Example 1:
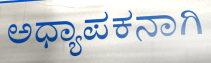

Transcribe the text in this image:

ಅಧ್ಯಾಪಕನಾಗಿ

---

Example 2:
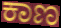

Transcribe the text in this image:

ಕಾಣ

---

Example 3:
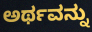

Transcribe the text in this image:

ಅರ್ಥವನ್ನು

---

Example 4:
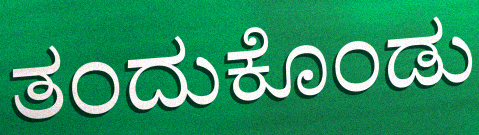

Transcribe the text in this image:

ತಂದುಕೊಂಡು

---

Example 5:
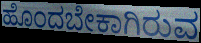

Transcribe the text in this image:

ಹೊಂದಬೇಕಾಗಿರುವ